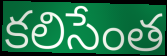
కలిసేంత